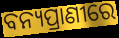
ବନ୍ୟପ୍ରାଣୀରେ